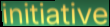
initiative